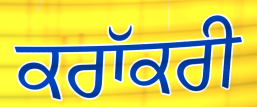
ਕਰਾੱਕਰੀ